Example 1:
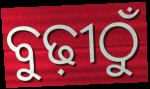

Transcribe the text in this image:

ବୁଢ଼ୀଠୁଁ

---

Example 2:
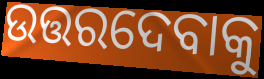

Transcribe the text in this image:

ଉତ୍ତରଦେବାକୁ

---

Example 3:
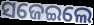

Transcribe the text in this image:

ସଜେଇଲେ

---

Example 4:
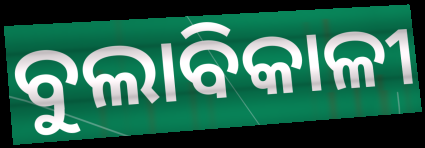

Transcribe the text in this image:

ବୁଲାବିକାଳୀ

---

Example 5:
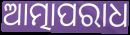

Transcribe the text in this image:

ଆତ୍ମାପରାଧ